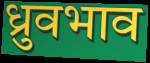
ध्रुवभाव